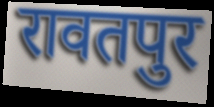
रावतपुर